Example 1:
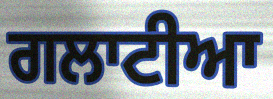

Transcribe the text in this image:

ਗਲਾਟੀਆ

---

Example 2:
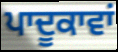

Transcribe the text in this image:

ਪਾਦੂਕਾਵਾਂ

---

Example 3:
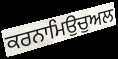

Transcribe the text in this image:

ਕਰਨਾਮਿਉਚੁਅਲ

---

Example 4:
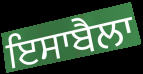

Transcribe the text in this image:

ਇਸਾਬੈਲਾ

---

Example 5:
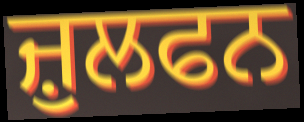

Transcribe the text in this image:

ਜ਼ੁਲਫਨ